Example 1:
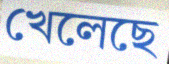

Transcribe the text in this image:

খেলেছে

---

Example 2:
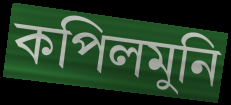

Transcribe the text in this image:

কপিলমুনি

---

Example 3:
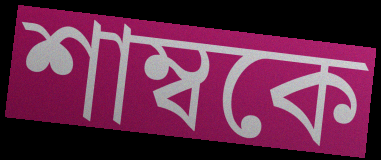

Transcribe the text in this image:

শাম্বকে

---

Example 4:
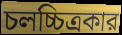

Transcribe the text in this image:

চলচ্চিত্রকার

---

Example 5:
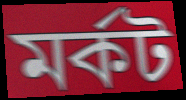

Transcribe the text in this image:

মর্কট